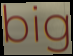
big